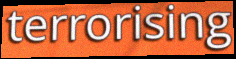
terrorising